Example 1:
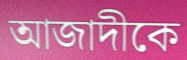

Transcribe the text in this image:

আজাদীকে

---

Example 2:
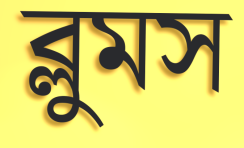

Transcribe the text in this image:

ব্লুমস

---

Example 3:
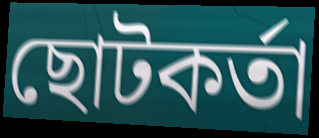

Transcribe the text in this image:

ছোটকর্তা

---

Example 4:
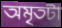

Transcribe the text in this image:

অমৃতটা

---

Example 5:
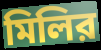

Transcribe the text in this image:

মিলির